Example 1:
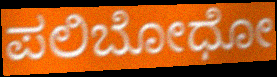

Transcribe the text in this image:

ಪಲಿಬೋಧೋ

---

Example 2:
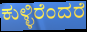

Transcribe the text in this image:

ಕುಳ್ಳಿರೆಂದರೆ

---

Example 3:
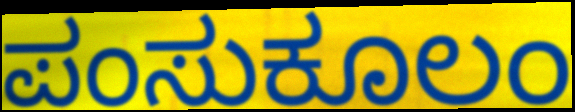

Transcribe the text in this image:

ಪಂಸುಕೂಲಂ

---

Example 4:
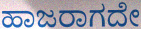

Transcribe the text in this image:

ಹಾಜರಾಗದೇ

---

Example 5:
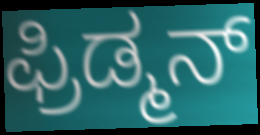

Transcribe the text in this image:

ಫ್ರಿಡ್ಮನ್